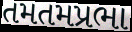
તમતમપ્રભા